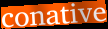
conative